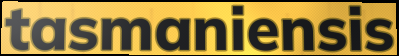
tasmaniensis